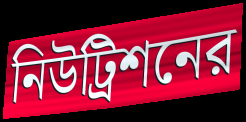
নিউট্রিশনের